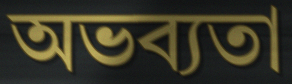
অভব্যতা